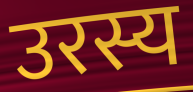
उरस्य